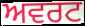
ਅਵਰਟ